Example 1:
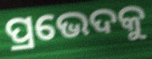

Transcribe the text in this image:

ପ୍ରଭେଦକୁ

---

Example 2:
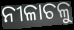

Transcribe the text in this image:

ନୀଳାଚଳୁ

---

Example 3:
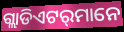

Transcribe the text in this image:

ଗ୍ଲାଡିଏଟର୍‍ମାନେ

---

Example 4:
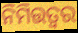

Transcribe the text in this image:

ନିମିତ୍ତତ୍ଵର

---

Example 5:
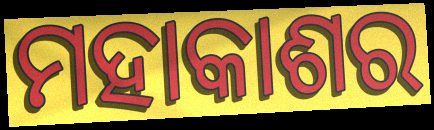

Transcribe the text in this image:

ମହାକାଶର